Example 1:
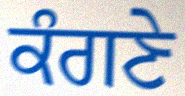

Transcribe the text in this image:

ਕੰਗਣੇ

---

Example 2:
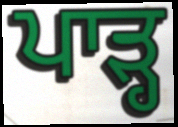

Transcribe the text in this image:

ਪਾੜ੍ਹ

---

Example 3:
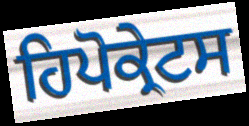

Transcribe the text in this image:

ਹਿਪੋਕ੍ਰੇਟਸ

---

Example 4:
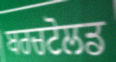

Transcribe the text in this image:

ਬਰਚਟੋਲਡ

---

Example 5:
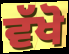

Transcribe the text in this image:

ਵੱਖੋ